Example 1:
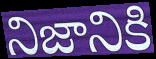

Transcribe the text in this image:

నిజానికి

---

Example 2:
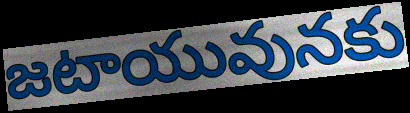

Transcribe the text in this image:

జటాయువునకు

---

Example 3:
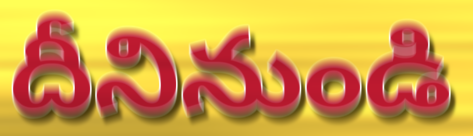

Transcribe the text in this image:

దీనినుండి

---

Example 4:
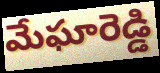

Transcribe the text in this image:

మేఘారెడ్డి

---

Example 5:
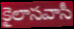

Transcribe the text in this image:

కైలాసవాసీ